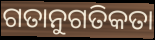
ଗତାନୁଗତିକତା